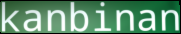
kanbinan